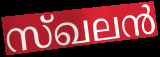
സ്ഖലൻ